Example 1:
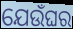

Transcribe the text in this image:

ଯେଉଁଘର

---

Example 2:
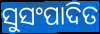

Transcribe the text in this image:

ସୁସଂପାଦିତ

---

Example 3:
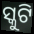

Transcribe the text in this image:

ସ୍କୁଟି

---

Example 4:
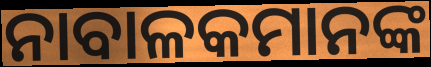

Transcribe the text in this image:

ନାବାଳକମାନଙ୍କ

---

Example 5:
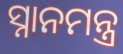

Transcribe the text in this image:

ସ୍ନାନମନ୍ତ୍ର